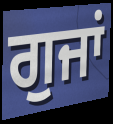
ਗੁਜਾਂ